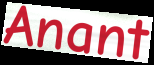
Anant